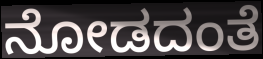
ನೋಡದಂತೆ